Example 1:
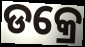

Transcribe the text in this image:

ଡକ୍ରେ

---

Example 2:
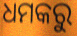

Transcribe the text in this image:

ଧମକରୁ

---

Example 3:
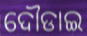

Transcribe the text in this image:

ଦୌଡାଇ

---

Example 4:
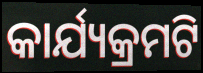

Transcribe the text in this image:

କାର୍ଯ୍ୟକ୍ରମଟି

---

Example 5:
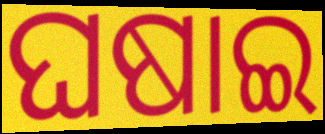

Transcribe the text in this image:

ଘଷାଇ